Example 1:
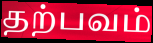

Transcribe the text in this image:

தற்பவம்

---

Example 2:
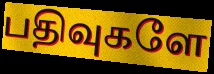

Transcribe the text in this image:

பதிவுகளே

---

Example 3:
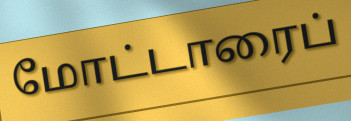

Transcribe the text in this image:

மோட்டாரைப்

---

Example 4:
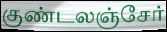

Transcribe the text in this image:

குண்டலஞ்சேர்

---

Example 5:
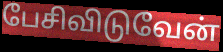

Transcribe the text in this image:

பேசிவிடுவேன்